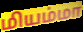
மியம்மா